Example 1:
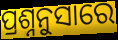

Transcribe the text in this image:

ପ୍ରଶ୍ନନୁସାରେ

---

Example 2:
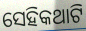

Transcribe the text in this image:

ସେହିକଥାଟି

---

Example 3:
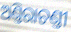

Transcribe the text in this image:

ଅଣ୍ତିରାଚଣ୍ତୀ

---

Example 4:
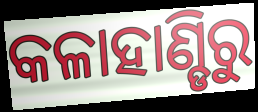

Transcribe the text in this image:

କଳାହାଣ୍ଡିରୁ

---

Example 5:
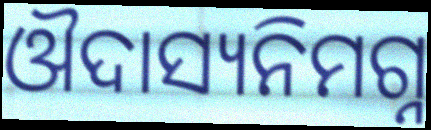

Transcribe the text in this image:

ଔଦାସ୍ୟନିମଗ୍ନ